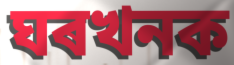
ঘৰখনক